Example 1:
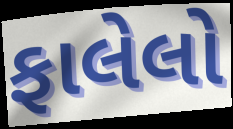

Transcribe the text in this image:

ફાલેલો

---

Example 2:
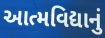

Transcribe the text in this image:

આત્મવિદ્યાનું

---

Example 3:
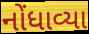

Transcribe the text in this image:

નોંધાવ્યા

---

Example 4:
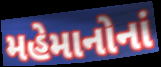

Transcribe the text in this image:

મહેમાનોનાં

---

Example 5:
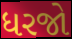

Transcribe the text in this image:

ધરજો